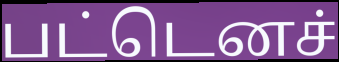
பட்டெனச்